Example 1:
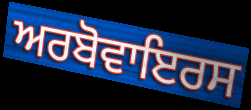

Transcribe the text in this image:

ਅਰਬੋਵਾਇਰਸ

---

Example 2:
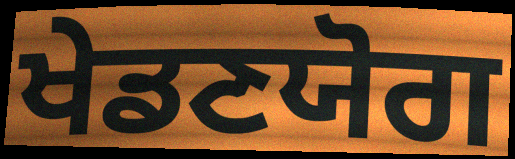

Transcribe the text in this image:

ਖੇਡਣਯੋਗ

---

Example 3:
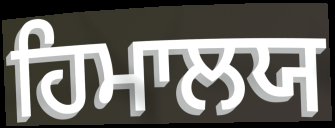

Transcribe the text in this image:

ਹਿਮਾਲਯ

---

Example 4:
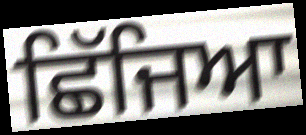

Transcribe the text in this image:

ਛਿੱਜਿਆ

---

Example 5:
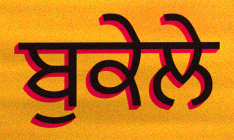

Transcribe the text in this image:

ਬੁਕੇਲੇ